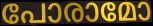
പോരാമോ